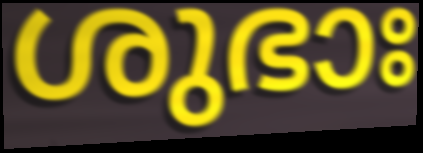
ശുഭാഃ